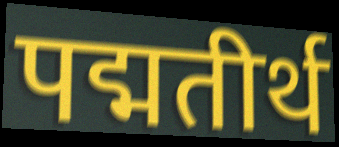
पद्मतीर्थ